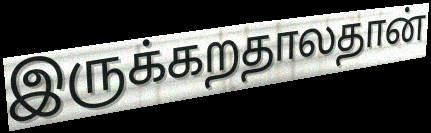
இருக்கறதாலதான்